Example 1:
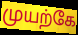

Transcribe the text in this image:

முயற்கே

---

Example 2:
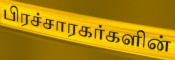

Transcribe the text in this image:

பிரச்சாரகர்களின்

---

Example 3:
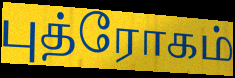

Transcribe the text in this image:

புத்ரோகம்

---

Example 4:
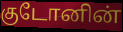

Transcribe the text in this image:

குடோனின்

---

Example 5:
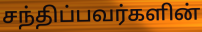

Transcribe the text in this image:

சந்திப்பவர்களின்